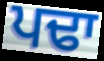
ਪਢਾ